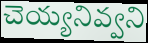
చెయ్యనివ్వని